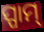
ସ୍ପାମ୍